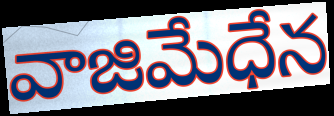
వాజిమేధేన